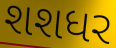
શશધર